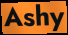
Ashy